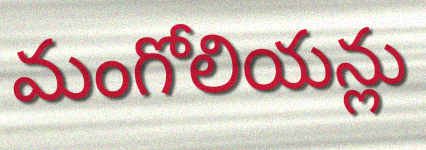
మంగోలియన్లు